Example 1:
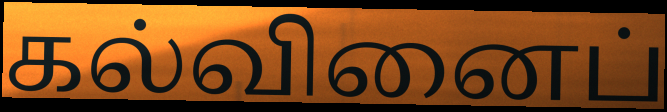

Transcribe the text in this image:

கல்வினைப்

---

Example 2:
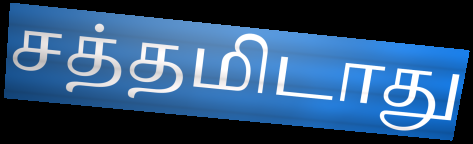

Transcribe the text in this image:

சத்தமிடாது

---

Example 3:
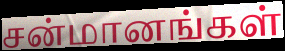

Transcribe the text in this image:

சன்மானங்கள்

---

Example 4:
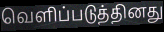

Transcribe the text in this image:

வெளிப்படுத்தினது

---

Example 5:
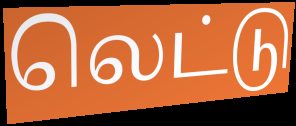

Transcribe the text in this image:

லெட்டு